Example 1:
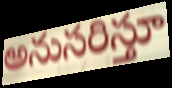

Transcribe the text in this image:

అనుసరిస్తూ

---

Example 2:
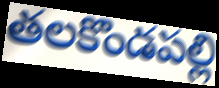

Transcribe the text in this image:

తలకొండపల్లి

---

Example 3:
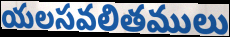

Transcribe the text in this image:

యలసవలితములు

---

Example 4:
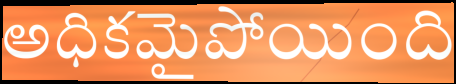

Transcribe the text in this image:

అధికమైపోయింది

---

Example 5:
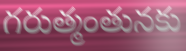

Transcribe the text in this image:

గరుత్మంతునకు